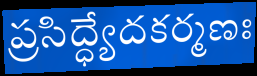
ప్రసిద్ధ్యేదకర్మణః